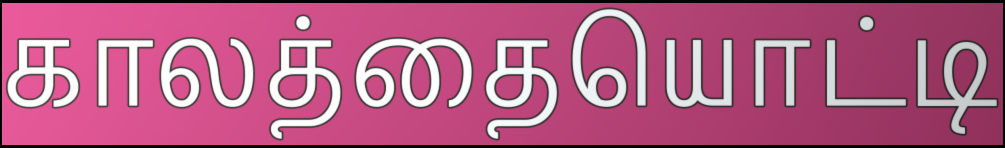
காலத்தையொட்டி